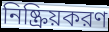
নিষ্ক্রিয়করণ